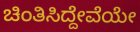
ಚಿಂತಿಸಿದ್ದೇವೆಯೇ